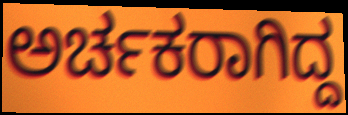
ಅರ್ಚಕರಾಗಿದ್ದ